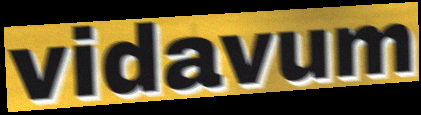
vidavum